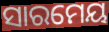
ସାରମେୟ